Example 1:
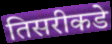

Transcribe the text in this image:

तिसरीकडे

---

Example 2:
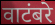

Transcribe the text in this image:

वाटंबरे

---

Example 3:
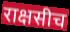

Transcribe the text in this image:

राक्षसीच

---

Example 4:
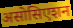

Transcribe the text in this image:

असोसिएशन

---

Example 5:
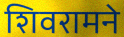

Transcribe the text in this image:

शिवरामने